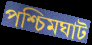
পশ্চিমঘাট